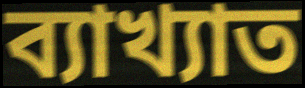
ব্যাখ্যাত